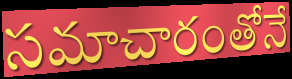
సమాచారంతోనే